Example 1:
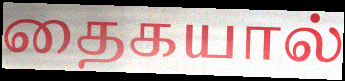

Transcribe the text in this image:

தைகயால்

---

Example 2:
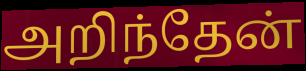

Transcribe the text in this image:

அறிந்தேன்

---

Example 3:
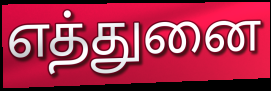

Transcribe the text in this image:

எத்துனை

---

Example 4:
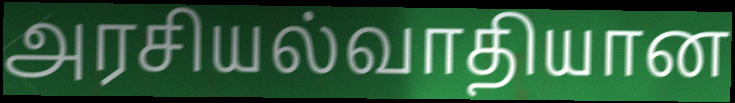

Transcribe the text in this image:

அரசியல்வாதியான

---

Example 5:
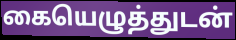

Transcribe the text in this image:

கையெழுத்துடன்